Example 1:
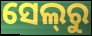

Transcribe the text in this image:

ସେଲ୍‌ରୁ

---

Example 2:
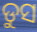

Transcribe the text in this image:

ଡୁସ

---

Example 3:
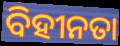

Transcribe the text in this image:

ବିହୀନତା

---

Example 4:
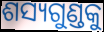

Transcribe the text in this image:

ଶସ୍ୟଗୁଣ୍ଡକୁ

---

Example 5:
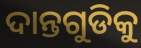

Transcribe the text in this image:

ଦାନ୍ତଗୁଡିକୁ